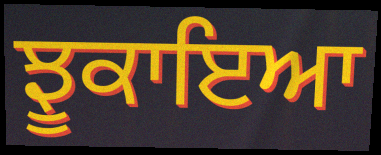
ਝੂਕਾਇਆ